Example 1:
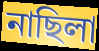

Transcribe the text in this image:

নাছিলা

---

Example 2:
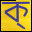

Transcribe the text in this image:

ক্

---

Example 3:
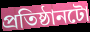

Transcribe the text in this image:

প্ৰতিষ্ঠানটো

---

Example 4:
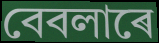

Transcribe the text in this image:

বেবলাৰে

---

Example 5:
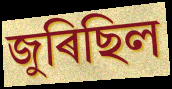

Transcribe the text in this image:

জুৰিছিল